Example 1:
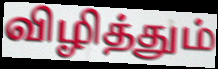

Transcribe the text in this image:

விழித்தும்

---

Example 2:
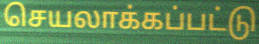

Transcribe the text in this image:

செயலாக்கப்பட்டு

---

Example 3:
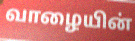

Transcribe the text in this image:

வாழையின்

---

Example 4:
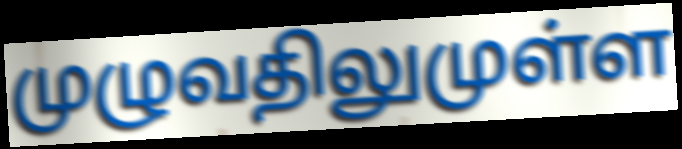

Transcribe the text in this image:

முழுவதிலுமுள்ள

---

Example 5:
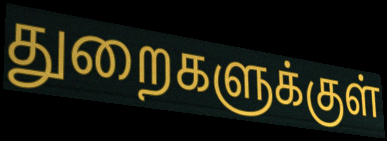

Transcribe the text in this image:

துறைகளுக்குள்